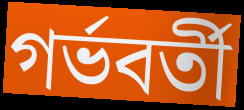
গর্ভবর্তী